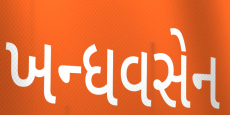
ખન્ધવસેન